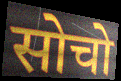
सोचो